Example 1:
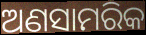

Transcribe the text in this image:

ଅଣସାମରିକ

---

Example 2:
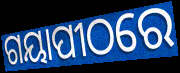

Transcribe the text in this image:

ଗୟାପୀଠରେ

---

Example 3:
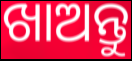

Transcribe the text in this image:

ଖାଅନ୍ତୁ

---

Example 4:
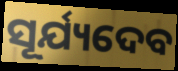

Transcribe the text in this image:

ସୂର୍ଯ୍ୟଦେବ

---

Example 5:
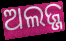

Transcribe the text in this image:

ଅଲଜ୍ଜ